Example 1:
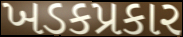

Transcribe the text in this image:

ખડકપ્રકાર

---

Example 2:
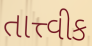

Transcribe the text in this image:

તાત્ત્વીક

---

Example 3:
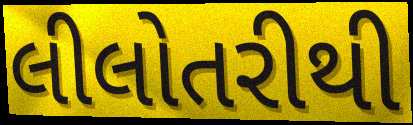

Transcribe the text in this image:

લીલોતરીથી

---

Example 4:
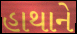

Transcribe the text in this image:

હાથાને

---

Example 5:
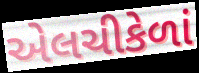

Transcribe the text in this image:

એલચીકેળાં